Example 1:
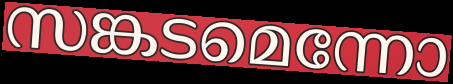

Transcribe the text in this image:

സങ്കടമെന്നോ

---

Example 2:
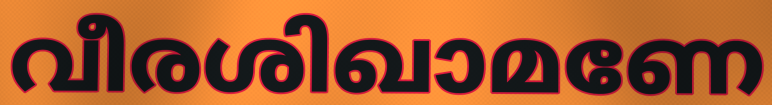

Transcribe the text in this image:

വീരശിഖാമണേ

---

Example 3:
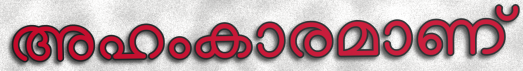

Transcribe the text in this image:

അഹംകാരമാണ്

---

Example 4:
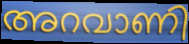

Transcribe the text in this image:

അറവാണി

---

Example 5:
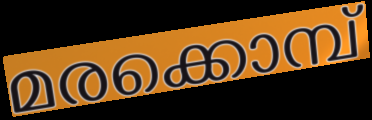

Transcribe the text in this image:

മരക്കൊമ്പ്